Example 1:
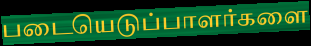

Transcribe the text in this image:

படையெடுப்பாளர்களை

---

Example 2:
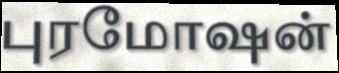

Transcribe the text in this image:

புரமோஷன்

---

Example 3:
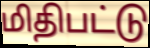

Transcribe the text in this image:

மிதிபட்டு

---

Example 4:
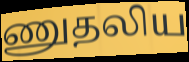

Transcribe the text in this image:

ணுதலிய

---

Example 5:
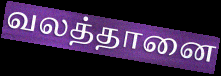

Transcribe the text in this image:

வலத்தானை